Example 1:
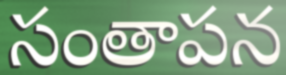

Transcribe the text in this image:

సంతాపన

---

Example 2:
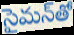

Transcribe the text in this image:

సైమన్‌తో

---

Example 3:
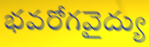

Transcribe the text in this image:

భవరోగవైద్యు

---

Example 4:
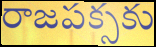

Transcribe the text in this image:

రాజపక్సకు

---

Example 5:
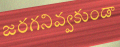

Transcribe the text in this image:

జరగనివ్వకుండా